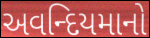
અવન્દિયમાનો